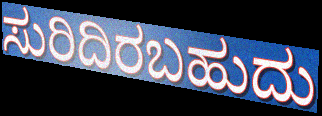
ಸುರಿದಿರಬಹುದು